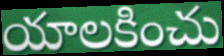
యాలకించు